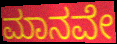
ಮಾನವೇ